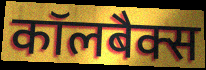
कॉलबैक्स